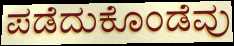
ಪಡೆದುಕೊಂಡೆವು